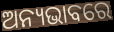
ଅନ୍ୟଭାବରେ